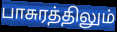
பாசுரத்திலும்